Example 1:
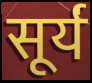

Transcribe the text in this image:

सूर्य॑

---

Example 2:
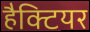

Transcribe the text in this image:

हैक्टियर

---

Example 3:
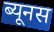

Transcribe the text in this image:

ब्यूनस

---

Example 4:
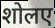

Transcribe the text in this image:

शोलए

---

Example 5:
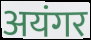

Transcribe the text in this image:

अयंगर